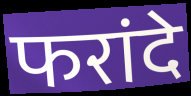
फरांदे